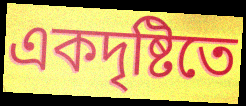
একদৃষ্টিতে